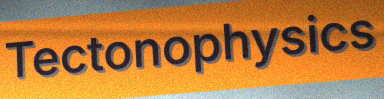
Tectonophysics